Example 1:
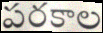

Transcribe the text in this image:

పరకాల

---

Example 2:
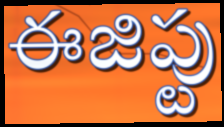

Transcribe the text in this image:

ఈజిప్టు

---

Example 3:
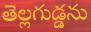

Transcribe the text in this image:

తెల్లగుడ్డను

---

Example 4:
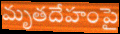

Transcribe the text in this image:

మృతదేహంపై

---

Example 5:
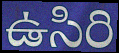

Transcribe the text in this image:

ఉసిరి